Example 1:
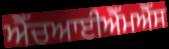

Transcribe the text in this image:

ਐੱਚਆਈਐੱਮਐੱਸ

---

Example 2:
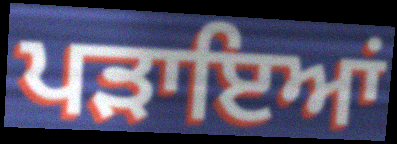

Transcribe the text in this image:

ਪੜਾਇਆਂ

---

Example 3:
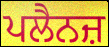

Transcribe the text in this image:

ਪਲੈਨਜ਼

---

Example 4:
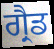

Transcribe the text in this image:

ਗ੍ਰੈਡ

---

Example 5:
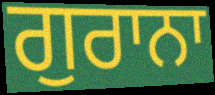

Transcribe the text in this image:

ਗੁਰਾਨਾ